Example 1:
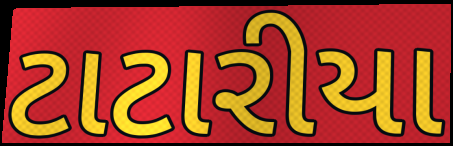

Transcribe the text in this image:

ટાટારીયા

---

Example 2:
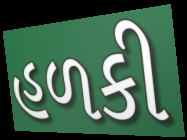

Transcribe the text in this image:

હળકી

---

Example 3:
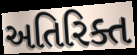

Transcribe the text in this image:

અતિરિક્ત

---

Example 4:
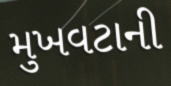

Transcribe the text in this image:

મુખવટાની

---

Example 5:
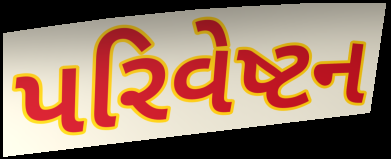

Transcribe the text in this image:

પરિવેષ્ટન